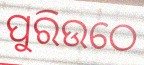
ପୁରିଉଠେ